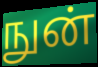
நுன்